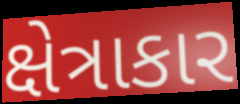
ક્ષેત્રાકાર